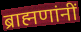
ब्राह्मणांनीं